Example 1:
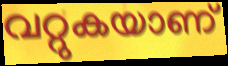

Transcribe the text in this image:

വറ്റുകയാണ്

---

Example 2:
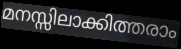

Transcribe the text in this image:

മനസ്സിലാക്കിത്തരാം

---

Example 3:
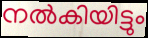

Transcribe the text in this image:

നൽകിയിട്ടും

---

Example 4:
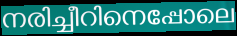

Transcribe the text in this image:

നരിച്ചീറിനെപ്പോലെ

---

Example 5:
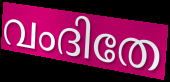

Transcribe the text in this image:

വംദിതേ